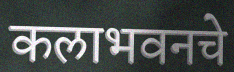
कलाभवनचे